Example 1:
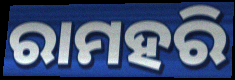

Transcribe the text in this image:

ରାମହରି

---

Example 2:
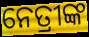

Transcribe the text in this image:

ନେତ୍ରୀଙ୍କ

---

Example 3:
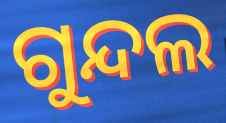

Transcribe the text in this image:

ଗୁନ୍ଦଲ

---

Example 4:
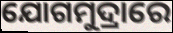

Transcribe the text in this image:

ଯୋଗମୁଦ୍ରାରେ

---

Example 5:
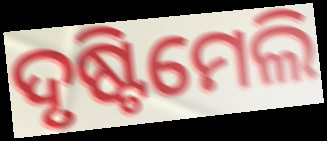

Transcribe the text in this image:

ଦୃଷ୍ଟିମେଲି